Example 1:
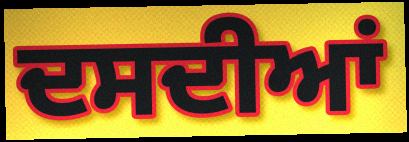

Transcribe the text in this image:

ਦਸਦੀਆਂ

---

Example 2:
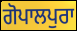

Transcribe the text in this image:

ਗੋਪਾਲਪੁਰਾ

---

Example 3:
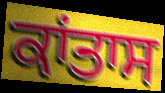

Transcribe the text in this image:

ਕਾਂਤਾਸ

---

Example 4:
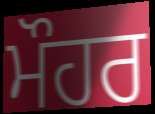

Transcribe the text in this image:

ਮੌਹਰ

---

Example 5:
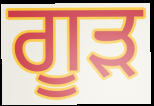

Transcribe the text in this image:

ਗੂੜ